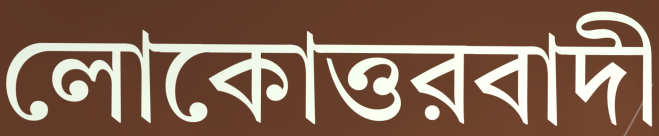
লোকোত্তরবাদী